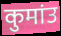
कुमांउ